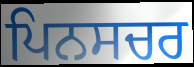
ਪਿਨਸਚਰ